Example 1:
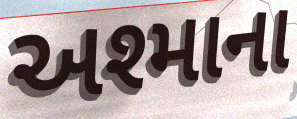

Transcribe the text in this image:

અશ્માના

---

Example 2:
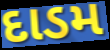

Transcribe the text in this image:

દાડમ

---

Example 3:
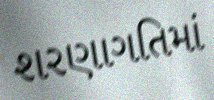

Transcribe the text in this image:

શરણાગતિમાં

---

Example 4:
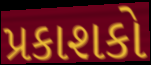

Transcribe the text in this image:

પ્રકાશકો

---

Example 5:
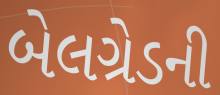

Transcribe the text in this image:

બેલગ્રેડની